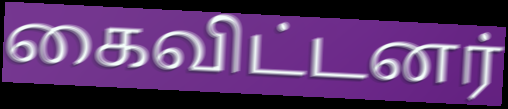
கைவிட்டனர்